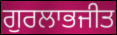
ਗੁਰਲਾਭਜੀਤ